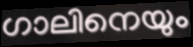
ഗാലിനെയും